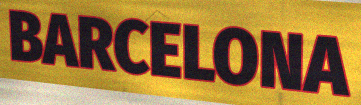
BARCELONA